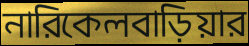
নারিকেলবাড়িয়ার